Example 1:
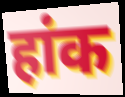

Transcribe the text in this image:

हांक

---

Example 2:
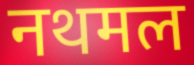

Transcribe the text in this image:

नथमल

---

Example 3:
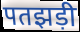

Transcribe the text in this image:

पतझड़ी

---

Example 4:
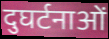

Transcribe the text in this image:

दुघर्टनाओं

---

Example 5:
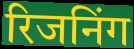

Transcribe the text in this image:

रिजनिंग